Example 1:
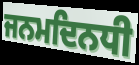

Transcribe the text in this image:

ਜਨਮਦਿਨਧੀ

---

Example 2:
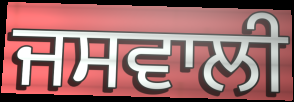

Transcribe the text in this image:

ਜਸਵਾਲੀ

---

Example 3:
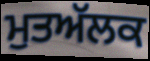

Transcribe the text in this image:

ਮੁਤਅੱਲਕ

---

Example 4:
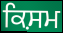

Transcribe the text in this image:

ਕ਼ਿਸਮ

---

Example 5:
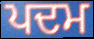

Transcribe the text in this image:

ਪਦਮ